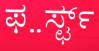
ಫ಼ರ್ಸ್ಟ್